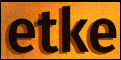
etke